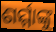
ଶର୍ମ୍ମାଙ୍କୁ